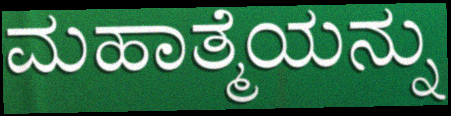
ಮಹಾತ್ಮೆಯನ್ನು